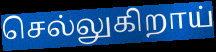
செல்லுகிறாய்